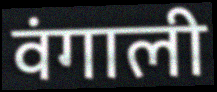
वंगाली